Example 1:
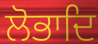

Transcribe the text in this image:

ਲੋਭਾਦਿ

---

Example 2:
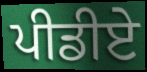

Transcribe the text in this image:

ਪੀਡੀਏ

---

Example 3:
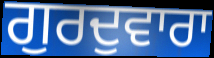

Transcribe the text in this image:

ਗੁਰਦੁਵਾਰਾ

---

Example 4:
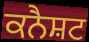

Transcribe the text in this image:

ਕਨੈਸ਼ਟ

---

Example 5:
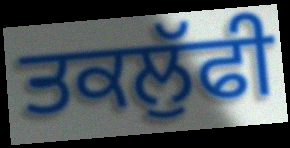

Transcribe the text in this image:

ਤਕਲੁੱਫੀ